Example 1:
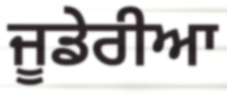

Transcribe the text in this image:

ਜੂਡੇਰੀਆ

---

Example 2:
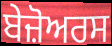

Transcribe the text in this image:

ਬੇਜ਼ੋਅਰਸ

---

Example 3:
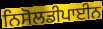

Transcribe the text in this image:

ਨਿਸੋਲਡੀਪਾਈਨ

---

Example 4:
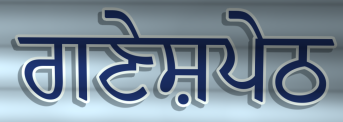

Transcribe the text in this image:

ਗਣੇਸ਼ਪੇਠ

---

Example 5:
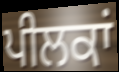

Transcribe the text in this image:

ਪੀਲਕਾਂ